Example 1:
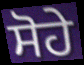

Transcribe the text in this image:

ਸੋਹੇ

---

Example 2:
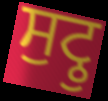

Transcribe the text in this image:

ਸੁਟ੍ਠੁ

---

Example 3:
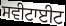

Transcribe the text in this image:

ਸਵੀਟਾਈਟ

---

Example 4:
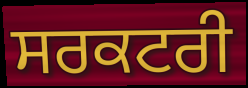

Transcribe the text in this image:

ਸਰਕਟਰੀ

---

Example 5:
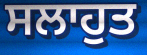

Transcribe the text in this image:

ਸਲਾਹੁਤ